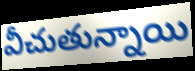
వీచుతున్నాయి